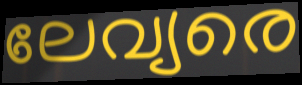
ലേവ്യരെ